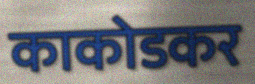
काकोडकर